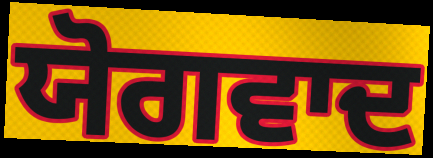
ਯੋਗਵਾਦ